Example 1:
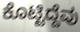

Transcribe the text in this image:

ಕೊಟ್ಟಿದ್ದೆವು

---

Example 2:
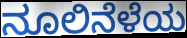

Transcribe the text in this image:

ನೂಲಿನೆಳೆಯ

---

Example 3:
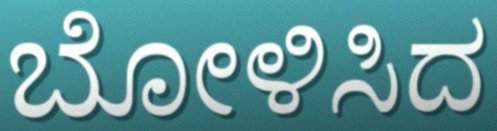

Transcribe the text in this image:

ಬೋಳಿಸಿದ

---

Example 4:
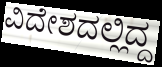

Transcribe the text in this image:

ವಿದೇಶದಲ್ಲಿದ್ದ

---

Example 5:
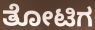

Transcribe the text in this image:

ತೋಟಿಗ